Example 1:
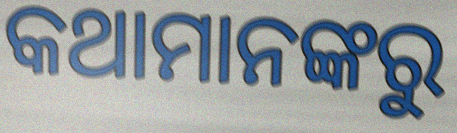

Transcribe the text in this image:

କଥାମାନଙ୍କରୁ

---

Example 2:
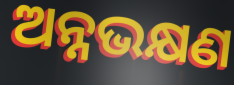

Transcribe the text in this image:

ଅନ୍ନଭକ୍ଷଣ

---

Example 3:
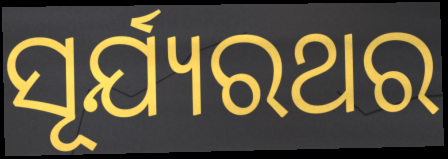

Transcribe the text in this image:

ସୂର୍ଯ୍ୟରଥର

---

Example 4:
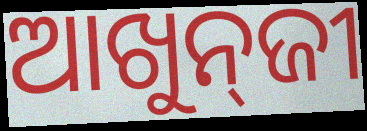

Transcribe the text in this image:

ଆଖୁନ୍‍ଜୀ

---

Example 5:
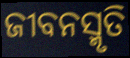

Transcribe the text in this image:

ଜୀବନସ୍ମୃତି